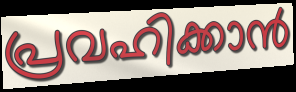
പ്രവഹിക്കാൻ